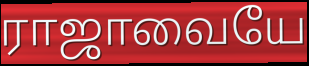
ராஜாவையே